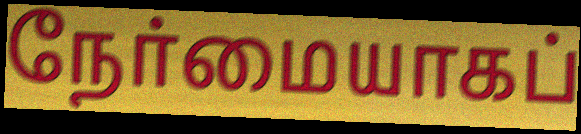
நேர்மையாகப்